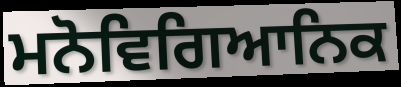
ਮਨੋਵਿਗਿਆਨਿਕ